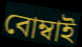
বোম্বাই